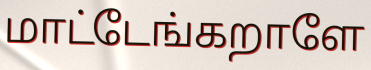
மாட்டேங்கறாளே